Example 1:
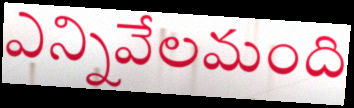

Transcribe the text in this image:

ఎన్నివేలమంది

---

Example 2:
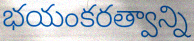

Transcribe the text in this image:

భయంకరత్వాన్ని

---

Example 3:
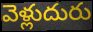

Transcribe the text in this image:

వెళ్లుదురు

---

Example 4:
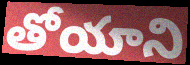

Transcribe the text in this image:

తోయాని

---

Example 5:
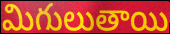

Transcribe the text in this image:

మిగులుతాయి